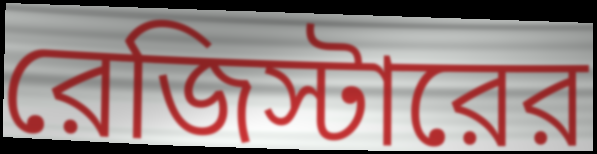
রেজিস্টারের